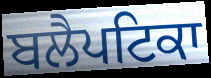
ਬਲੈਪਟਿਕਾ